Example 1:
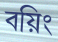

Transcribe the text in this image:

বয়িং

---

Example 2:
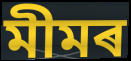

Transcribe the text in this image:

মীমৰ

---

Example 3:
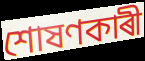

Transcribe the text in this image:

শোষণকাৰী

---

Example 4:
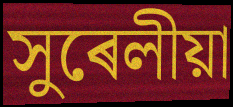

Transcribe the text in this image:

সুৰেলীয়া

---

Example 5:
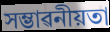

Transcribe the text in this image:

সম্ভাৱনীয়তা